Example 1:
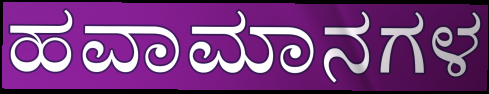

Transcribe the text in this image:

ಹವಾಮಾನಗಳ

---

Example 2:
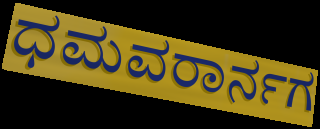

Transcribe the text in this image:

ಧಮವರಾರ್ನಗ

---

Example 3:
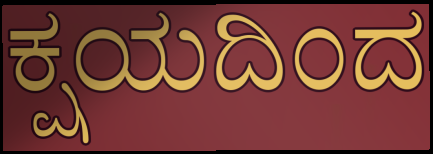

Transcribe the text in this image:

ಕ್ಷಯದಿಂದ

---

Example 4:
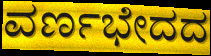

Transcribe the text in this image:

ವರ್ಣಭೇದದ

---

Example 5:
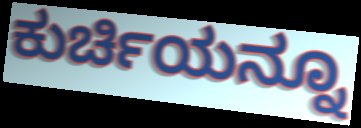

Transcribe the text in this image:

ಕುರ್ಚಿಯನ್ನೂ